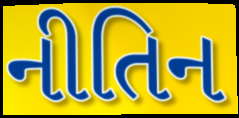
નીતિન